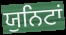
ਯੁਨਿਟਾਂ